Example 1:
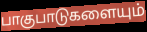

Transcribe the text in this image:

பாகுபாடுகளையும்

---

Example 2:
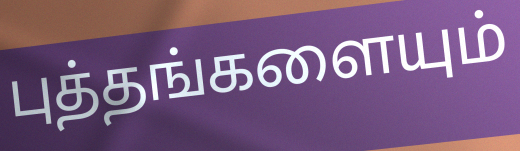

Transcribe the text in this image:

புத்தங்களையும்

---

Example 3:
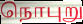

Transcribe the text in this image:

நொபுறு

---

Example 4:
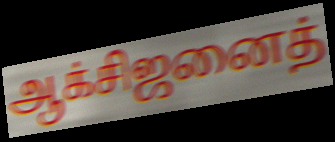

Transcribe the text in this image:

ஆக்சிஜனைத்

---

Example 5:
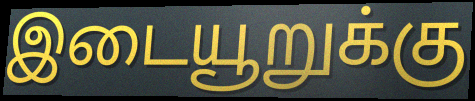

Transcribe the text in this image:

இடையூறுக்கு